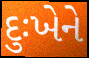
દુઃખેને